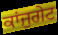
ਕਾਂਜੁਗੇਟ